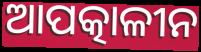
ଆପତ୍କାଳୀନ